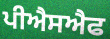
ਪੀਐਸਐਫ